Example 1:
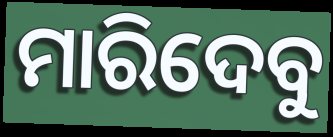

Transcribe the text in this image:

ମାରିଦେବୁ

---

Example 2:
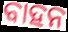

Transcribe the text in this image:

ବାହନ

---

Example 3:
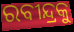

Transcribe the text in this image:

ରବୀନ୍ଦ୍ରକୁ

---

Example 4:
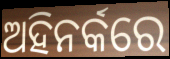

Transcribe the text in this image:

ଅହିନର୍କରେ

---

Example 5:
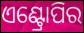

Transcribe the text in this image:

ଏଣ୍ଟ୍ରୋପିର